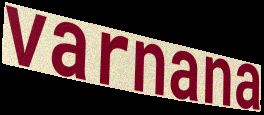
varnana